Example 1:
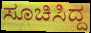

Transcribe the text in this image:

ಸೂಚಿಸಿದ್ದ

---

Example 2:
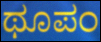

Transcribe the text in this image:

ಥೂಪಂ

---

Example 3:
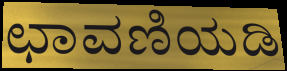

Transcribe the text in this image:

ಛಾವಣಿಯಡಿ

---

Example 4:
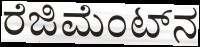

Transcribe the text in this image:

ರೆಜಿಮೆಂಟ್‌ನ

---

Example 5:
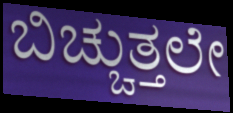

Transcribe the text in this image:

ಬಿಚ್ಚುತ್ತಲೇ